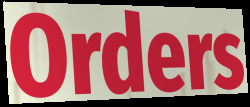
Orders